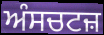
ਅੰਸਚਟਜ਼